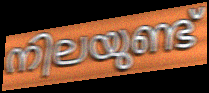
നിലയുണ്ട്